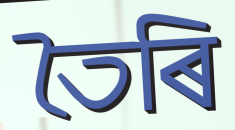
তৈৰি